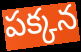
పక్కన